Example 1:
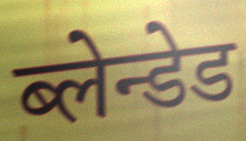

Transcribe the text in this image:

ब्लेन्डेड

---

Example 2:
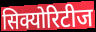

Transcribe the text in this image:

सिक्योरिटीज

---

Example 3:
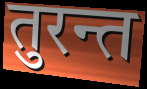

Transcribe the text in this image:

तुरन्त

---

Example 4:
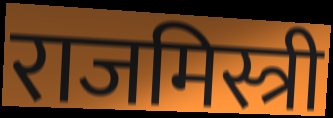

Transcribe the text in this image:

राजमिस्त्री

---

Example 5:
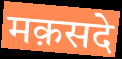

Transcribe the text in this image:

मक़सदे